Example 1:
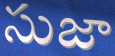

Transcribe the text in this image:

సుజా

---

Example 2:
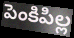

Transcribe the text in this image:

పెంకిపిల్ల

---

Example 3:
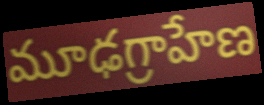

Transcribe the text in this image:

మూఢగ్రాహేణ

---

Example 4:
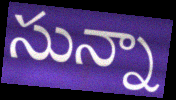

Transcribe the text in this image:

సున్నా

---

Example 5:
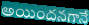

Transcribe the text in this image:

అయిందనగానే